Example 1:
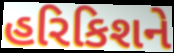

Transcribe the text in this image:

હરિકિશને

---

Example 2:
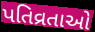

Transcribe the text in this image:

પતિવ્રતાઓ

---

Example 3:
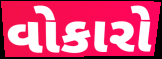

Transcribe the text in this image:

વોકારો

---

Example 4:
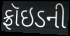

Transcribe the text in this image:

ફ્રૉઇડની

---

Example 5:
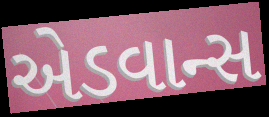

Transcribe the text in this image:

એડવાન્સ